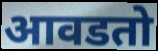
आवडतो